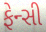
ફેન્સી